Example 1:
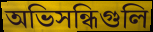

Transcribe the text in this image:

অভিসন্ধিগুলি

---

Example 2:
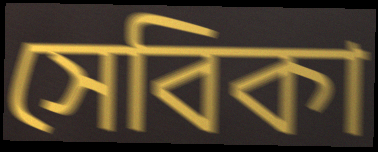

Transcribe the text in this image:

সেবিকা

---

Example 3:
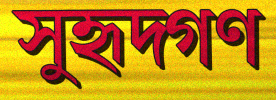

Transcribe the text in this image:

সুহৃদ্গণ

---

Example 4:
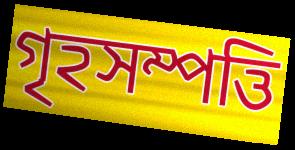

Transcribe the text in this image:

গৃহসম্পত্তি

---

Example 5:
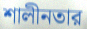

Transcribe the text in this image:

শালীনতার